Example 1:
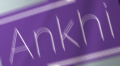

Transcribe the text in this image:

Ankhi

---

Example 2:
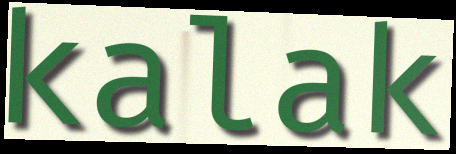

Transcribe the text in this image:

kalak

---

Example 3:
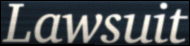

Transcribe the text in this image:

Lawsuit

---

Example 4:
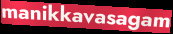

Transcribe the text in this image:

manikkavasagam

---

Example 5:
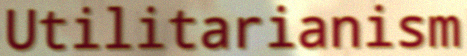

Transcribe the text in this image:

Utilitarianism